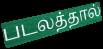
படலத்தால்